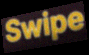
Swipe